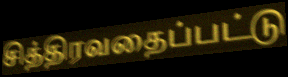
சித்திரவதைப்பட்டு